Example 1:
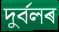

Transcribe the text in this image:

দুৰ্বলৰ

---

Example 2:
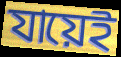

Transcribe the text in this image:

যায়েই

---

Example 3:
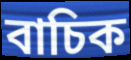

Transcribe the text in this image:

বাচিক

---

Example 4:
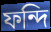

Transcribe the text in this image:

ফন্দি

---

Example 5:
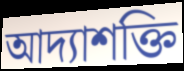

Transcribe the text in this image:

আদ্যাশক্তি